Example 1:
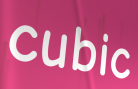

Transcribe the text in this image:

cubic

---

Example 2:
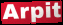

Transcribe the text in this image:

Arpit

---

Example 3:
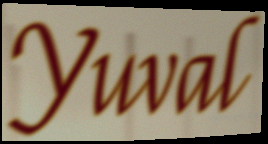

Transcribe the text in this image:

Yuval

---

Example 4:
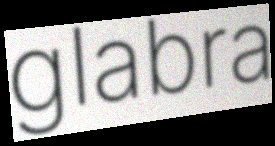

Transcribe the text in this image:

glabra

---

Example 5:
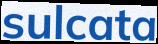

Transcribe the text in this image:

sulcata